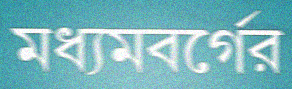
মধ্যমবর্গের